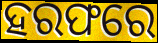
ହରଫରେ